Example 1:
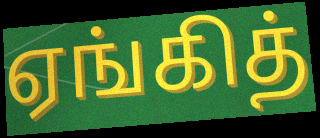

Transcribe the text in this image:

ஏங்கித்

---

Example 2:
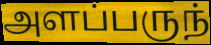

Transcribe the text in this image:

அளப்பருந்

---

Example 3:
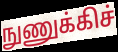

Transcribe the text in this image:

நுணுக்கிச்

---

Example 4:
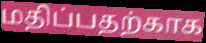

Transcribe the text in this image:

மதிப்பதற்காக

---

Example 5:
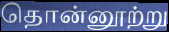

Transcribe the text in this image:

தொன்னூற்று